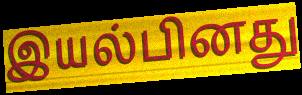
இயல்பினது